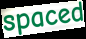
spaced